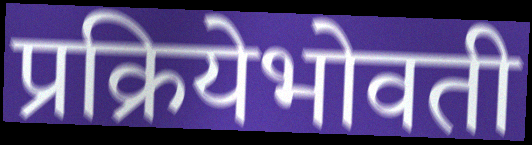
प्रक्रियेभोवती